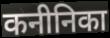
कनीनिका